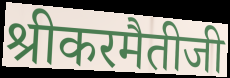
श्रीकरमैतीजी